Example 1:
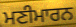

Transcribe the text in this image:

ਮਣੀਮਾਰਨ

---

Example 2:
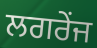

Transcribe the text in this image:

ਲਗਰੇਂਜ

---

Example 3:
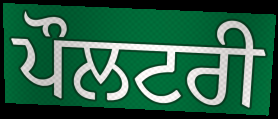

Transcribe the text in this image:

ਪੌਲਟਰੀ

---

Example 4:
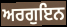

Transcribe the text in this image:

ਅਰਗੁਇਨ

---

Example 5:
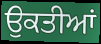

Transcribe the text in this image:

ਉਕਤੀਆਂ